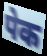
पेक